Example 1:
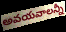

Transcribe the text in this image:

అవయవాలన్నీ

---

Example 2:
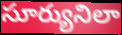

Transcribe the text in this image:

సూర్యునిలా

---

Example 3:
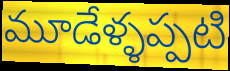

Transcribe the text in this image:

మూడేళ్ళప్పటి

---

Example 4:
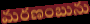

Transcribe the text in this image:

మరణంబును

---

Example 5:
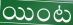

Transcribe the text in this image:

యింట